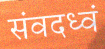
संवदध्वं